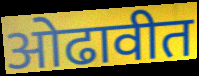
ओढावीत